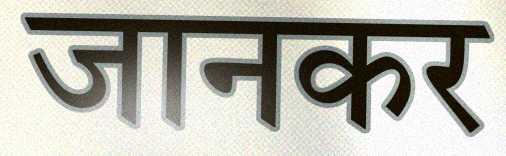
जानकर